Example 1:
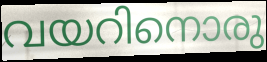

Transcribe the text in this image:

വയറിനൊരു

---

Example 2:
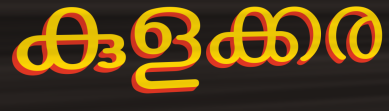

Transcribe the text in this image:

കുളക്കര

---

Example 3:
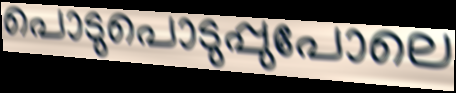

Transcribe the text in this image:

പൊടുപൊടുപ്പുപോലെ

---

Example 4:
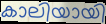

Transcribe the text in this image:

കാലിയായി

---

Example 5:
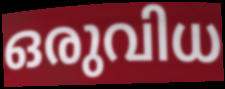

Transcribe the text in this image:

ഒരുവിധ